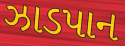
ઝાડપાન